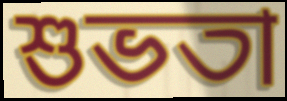
শুভতা